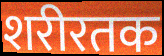
शरीरतक